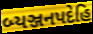
બ્યઞ્જનપદેહિ